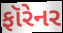
ફૉરેનર